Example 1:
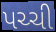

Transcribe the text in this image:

પચ્ચી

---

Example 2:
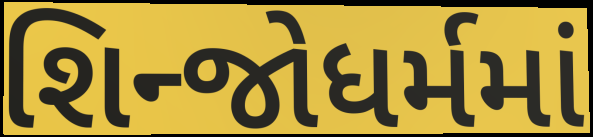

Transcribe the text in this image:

શિન્જોધર્મમાં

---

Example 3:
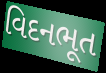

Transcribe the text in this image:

વિદનભૂત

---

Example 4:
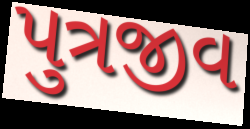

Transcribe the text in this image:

પુત્રજીવ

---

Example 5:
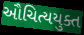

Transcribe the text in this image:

ઔચિત્યયુક્ત